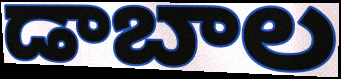
డాబాల